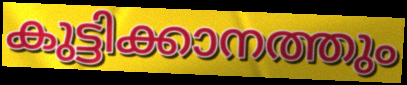
കുട്ടിക്കാനത്തും